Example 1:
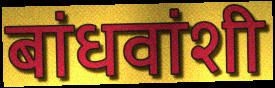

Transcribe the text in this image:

बांधवांशी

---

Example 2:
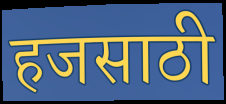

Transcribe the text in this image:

हजसाठी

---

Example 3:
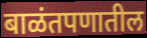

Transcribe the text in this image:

बाळंतपणातील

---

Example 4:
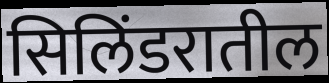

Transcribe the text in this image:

सिलिंडरातील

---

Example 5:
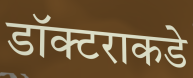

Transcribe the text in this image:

डॉक्टराकडे